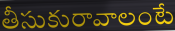
తీసుకురావాలంటే